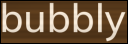
bubbly